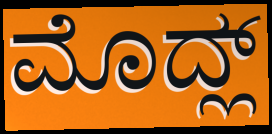
ಮೊದ್ಲ್